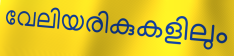
വേലിയരികുകളിലും